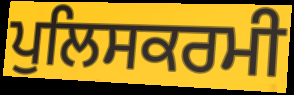
ਪੁਲਿਸਕਰਮੀ